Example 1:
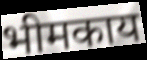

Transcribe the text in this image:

भीमकाय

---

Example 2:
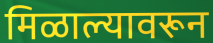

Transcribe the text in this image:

मिळाल्यावरून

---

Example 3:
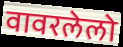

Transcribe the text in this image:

वावरलेलो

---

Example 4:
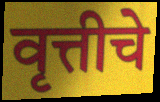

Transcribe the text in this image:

वृत्तीचे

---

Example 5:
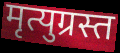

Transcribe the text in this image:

मृत्युग्रस्त